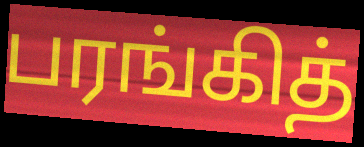
பரங்கித்